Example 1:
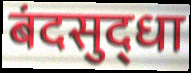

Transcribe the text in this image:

बंदसुद्धा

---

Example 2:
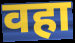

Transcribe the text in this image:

वहा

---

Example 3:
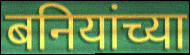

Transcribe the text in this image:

बनियांच्या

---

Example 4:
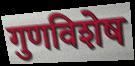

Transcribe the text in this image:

गुणविशेष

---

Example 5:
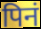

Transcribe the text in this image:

पिनं